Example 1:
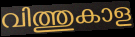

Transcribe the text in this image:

വിത്തുകാള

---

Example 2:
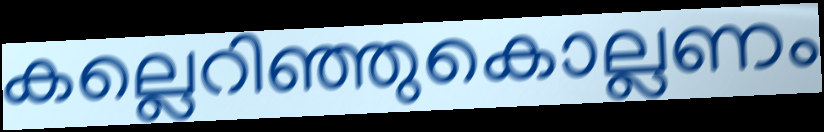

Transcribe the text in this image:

കല്ലെറിഞ്ഞുകൊല്ലണം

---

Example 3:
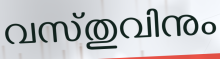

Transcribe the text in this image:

വസ്‌തുവിനും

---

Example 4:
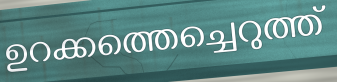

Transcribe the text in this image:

ഉറക്കത്തെച്ചെറുത്ത്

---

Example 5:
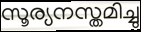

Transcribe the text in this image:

സൂര്യനസ്തമിച്ചു